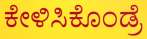
ಕೇಳಿಸಿಕೊಂಡ್ರೆ